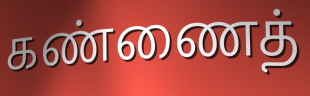
கண்ணைத்